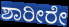
ಶಾರೀರೇ